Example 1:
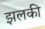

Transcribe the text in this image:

झलकी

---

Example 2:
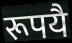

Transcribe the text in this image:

रूपयै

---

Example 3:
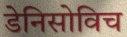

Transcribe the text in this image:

डेनिसोविच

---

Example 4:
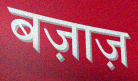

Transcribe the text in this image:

बज़ाज़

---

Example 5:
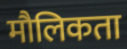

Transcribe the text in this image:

मौलिकता